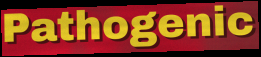
Pathogenic